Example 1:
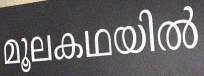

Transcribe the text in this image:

മൂലകഥയിൽ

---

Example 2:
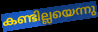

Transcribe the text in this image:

കണ്ടില്ലയെന്നു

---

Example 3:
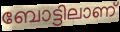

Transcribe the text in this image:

ബോട്ടിലാണ്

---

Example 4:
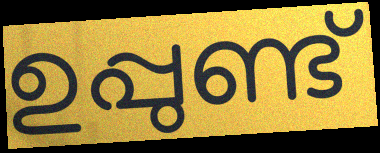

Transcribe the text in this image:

ഉപ്പുണ്ട്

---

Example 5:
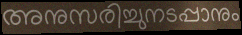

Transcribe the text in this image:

അനുസരിച്ചുനടപ്പാനും